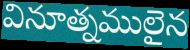
వినూత్నములైన